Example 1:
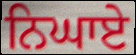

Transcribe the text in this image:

ਨਿਘਾਏ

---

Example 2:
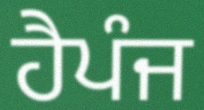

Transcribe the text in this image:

ਹੈਪੰਜ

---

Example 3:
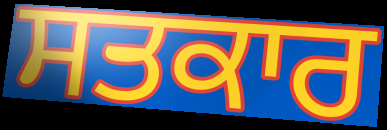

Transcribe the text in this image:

ਸਤਕਾਰ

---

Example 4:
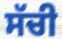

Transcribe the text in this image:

ਸੱਚੀ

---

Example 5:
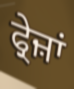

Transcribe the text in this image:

ਫ੍ਰੇਜ਼ਾਂ